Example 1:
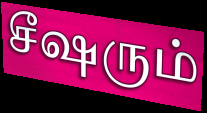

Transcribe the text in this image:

சீஷரும்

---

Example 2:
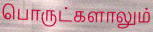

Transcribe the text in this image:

பொருட்களாலும்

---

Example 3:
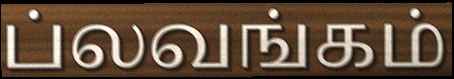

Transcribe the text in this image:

ப்லவங்கம்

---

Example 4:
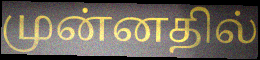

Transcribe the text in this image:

முன்னதில்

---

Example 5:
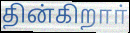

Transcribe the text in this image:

தின்கிறார்